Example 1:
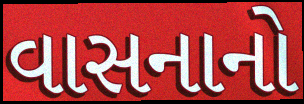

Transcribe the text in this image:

વાસનાનો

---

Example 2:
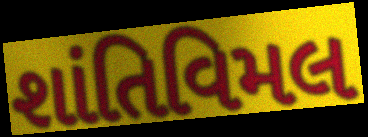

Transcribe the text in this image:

શાંતિવિમલ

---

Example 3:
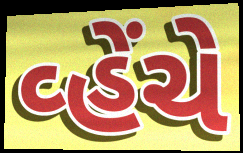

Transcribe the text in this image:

વ્હેંચે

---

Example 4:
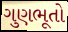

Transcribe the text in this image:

ગુણભૂતો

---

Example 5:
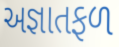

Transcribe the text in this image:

અજ્ઞાતફળ